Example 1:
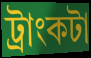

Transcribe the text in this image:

ট্রাংকটা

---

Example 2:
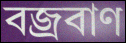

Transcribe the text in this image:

বজ্রবাণ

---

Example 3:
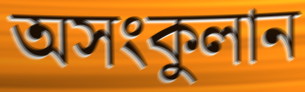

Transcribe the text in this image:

অসংকুলান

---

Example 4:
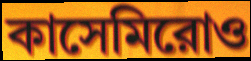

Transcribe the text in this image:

কাসেমিরোও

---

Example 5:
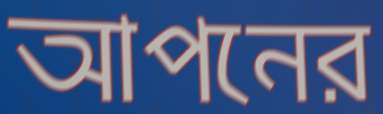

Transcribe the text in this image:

আপনের